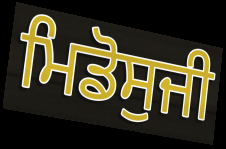
ਮਿਡੋਸੁਜੀ